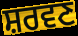
ਸ਼ਰਵਣ